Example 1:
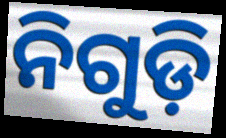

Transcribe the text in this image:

ନିଗୁଡ଼ି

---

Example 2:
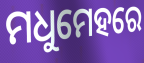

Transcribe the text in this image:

ମଧୁମେହରେ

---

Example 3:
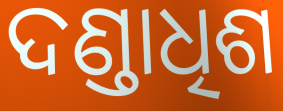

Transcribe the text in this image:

ଦଣ୍ଡାଧିଶ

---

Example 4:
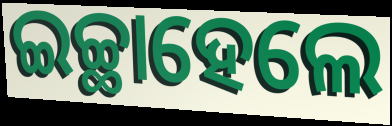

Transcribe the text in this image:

ଇଚ୍ଛାହେଲେ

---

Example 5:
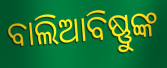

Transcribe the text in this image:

ବାଲିଆବିଷ୍ଣୁଙ୍କ